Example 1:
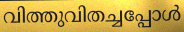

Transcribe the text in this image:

വിത്തുവിതച്ചപ്പോൾ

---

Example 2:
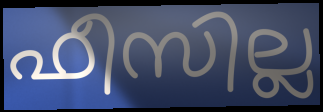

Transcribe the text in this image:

ഫീസില്ല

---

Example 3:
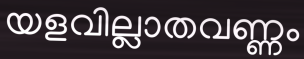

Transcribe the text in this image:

യളവില്ലാതവണ്ണം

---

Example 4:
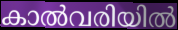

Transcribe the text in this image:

കാൽവരിയിൽ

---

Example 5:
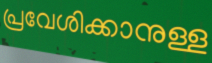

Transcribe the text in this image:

പ്രവേശിക്കാനുള്ള